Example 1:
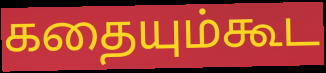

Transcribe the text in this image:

கதையும்கூட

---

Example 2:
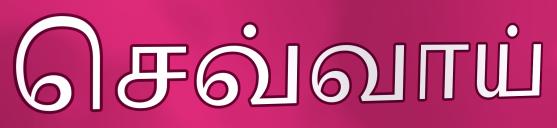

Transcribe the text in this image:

செவ்வாய்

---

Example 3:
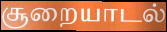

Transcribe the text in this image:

சூறையாடல்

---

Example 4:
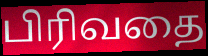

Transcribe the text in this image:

பிரிவதை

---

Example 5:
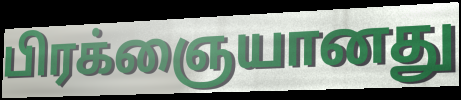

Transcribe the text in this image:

பிரக்ஞையானது